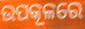
ଉପକୂଳରେ